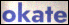
okate